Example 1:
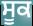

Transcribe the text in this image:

ਸੂਕ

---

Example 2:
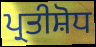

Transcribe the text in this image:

ਪ੍ਰਤੀਸ਼ੋਧ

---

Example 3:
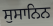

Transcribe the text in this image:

ਸੁਸਾਨਿਨ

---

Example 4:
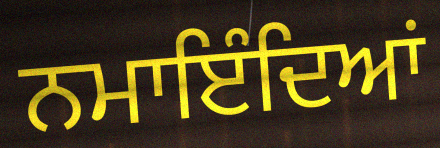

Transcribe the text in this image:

ਨਮਾਇੰਦਿਆਂ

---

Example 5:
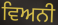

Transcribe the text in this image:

ਵਿਅਨੀ